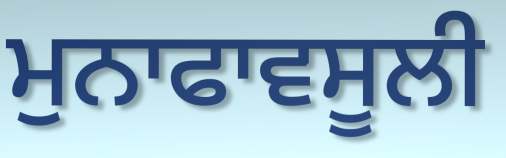
ਮੁਨਾਫਾਵਸੂਲੀ